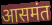
आसमंत